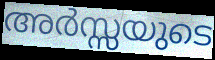
അർസ്സയുടെ